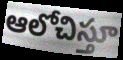
ఆలోచిస్తూ